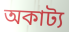
অকাট্য